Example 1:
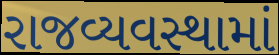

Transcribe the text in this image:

રાજવ્યવસ્થામાં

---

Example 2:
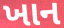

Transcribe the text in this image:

ખાન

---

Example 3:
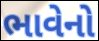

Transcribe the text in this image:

ભાવેનો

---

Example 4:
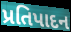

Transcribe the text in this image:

પ્રતિપાદન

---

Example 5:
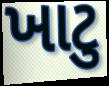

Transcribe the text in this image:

ખાટુ